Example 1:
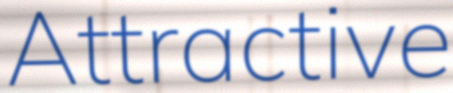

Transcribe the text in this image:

Attractive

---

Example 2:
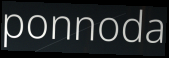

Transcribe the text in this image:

ponnoda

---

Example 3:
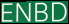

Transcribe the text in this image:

ENBD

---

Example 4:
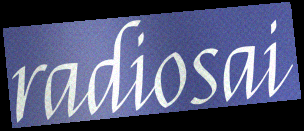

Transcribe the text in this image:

radiosai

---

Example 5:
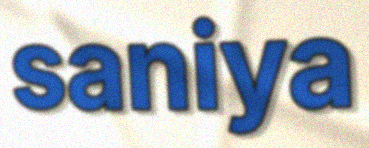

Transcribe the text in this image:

saniya